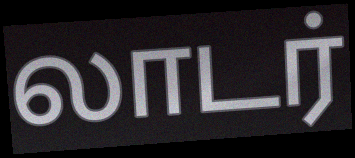
லாடர்